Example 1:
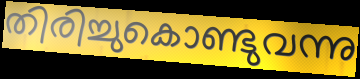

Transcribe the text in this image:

തിരിച്ചുകൊണ്ടുവന്നു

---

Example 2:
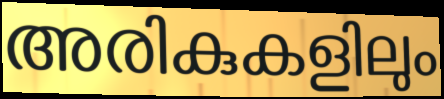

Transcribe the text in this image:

അരികുകളിലും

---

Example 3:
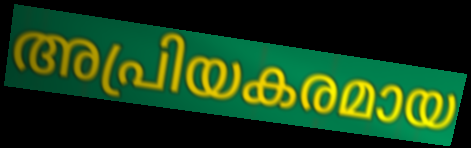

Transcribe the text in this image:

അപ്രിയകരമായ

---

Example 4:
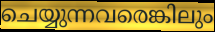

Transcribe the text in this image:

ചെയ്യുന്നവരെങ്കിലും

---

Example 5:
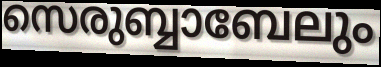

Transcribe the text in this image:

സെരുബ്ബാബേലും